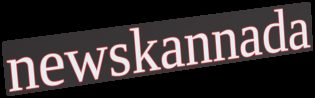
newskannada